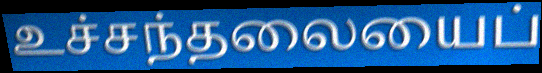
உச்சந்தலையைப்